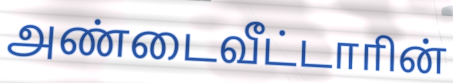
அண்டைவீட்டாரின்